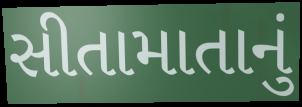
સીતામાતાનું